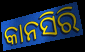
କାନସିରି